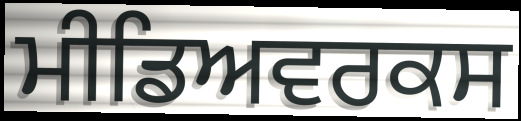
ਮੀਡਿਅਵਰਕਸ